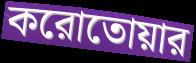
করোতোয়ার